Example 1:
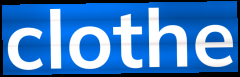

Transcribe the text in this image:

clothe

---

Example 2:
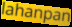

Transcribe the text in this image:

lahanpan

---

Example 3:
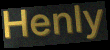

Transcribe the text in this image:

Henly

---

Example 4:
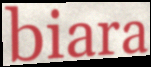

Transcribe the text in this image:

biara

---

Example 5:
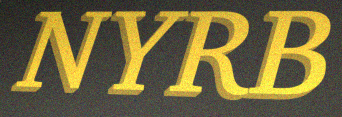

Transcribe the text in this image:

NYRB